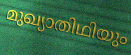
മുഖ്യാതിഥിയും